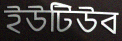
ইউটিউব